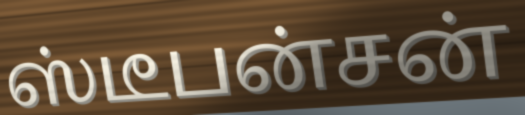
ஸ்டீபன்சன்